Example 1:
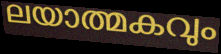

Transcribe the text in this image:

ലയാത്മകവും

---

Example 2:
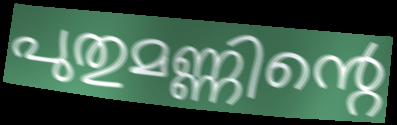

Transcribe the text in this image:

പുതുമണ്ണിന്റെ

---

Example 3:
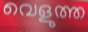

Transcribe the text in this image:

വെളുത്ത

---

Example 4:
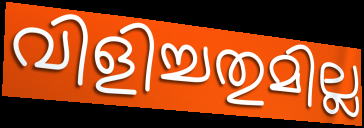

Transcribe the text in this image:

വിളിച്ചതുമില്ല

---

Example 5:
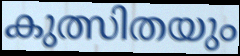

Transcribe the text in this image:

കുത്സിതയും